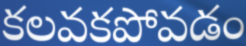
కలవకపోవడం